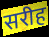
सरीह